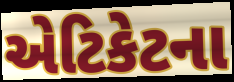
એટિકેટના